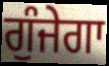
ਗੁੰਜੇਗਾ